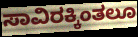
ಸಾವಿರಕ್ಕಿಂತಲೂ